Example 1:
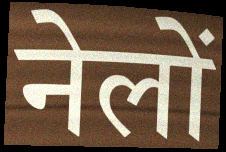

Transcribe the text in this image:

नेलों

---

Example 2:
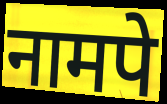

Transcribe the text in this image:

नामपे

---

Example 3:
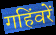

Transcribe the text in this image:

गहिंवरें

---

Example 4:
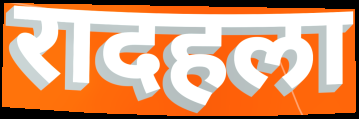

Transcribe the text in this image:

रादहला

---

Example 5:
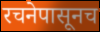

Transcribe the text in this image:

रचनेपासूनच